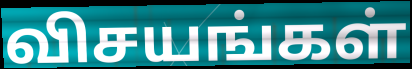
விசயங்கள்